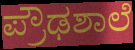
ಪ್ರೌಢಶಾಲೆ